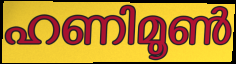
ഹണിമൂൺ